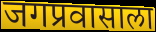
जगप्रवासाला